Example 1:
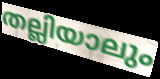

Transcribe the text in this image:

തല്ലിയാലും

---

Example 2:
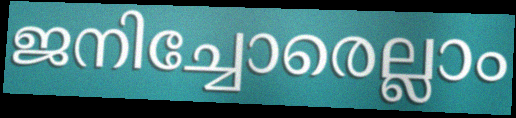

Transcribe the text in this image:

ജനിച്ചോരെല്ലാം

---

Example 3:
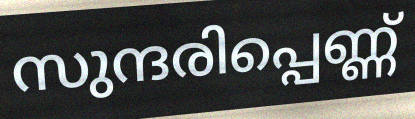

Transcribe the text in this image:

സുന്ദരിപ്പെണ്ണ്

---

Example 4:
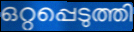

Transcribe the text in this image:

ഒറ്റപ്പെടുത്തി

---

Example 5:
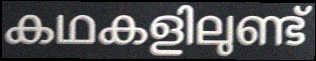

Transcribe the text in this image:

കഥകളിലുണ്ട്